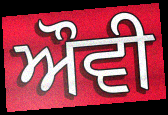
ਔਵੀ